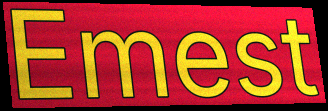
Emest